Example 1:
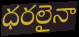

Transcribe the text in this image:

ధరలైనా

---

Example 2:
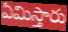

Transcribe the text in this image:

ఏమిస్తారు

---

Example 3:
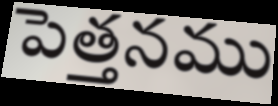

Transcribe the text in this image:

పెత్తనము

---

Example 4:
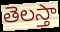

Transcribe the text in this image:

తెలస్తా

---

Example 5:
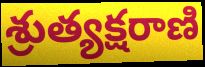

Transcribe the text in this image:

శ్రుత్యక్షరాణి